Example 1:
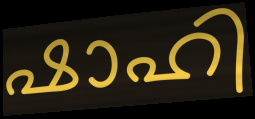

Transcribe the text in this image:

ഷാഹി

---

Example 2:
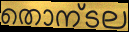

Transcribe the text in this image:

തൊന്ടല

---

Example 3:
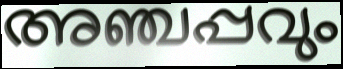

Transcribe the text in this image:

അഞ്ചപ്പവും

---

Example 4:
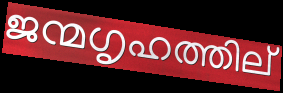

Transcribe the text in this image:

ജന്മഗൃഹത്തില്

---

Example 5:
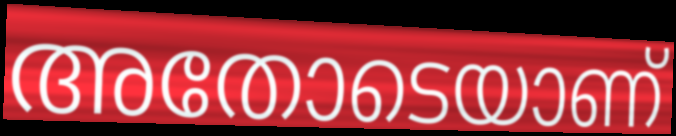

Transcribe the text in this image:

അതോടെയാണ്